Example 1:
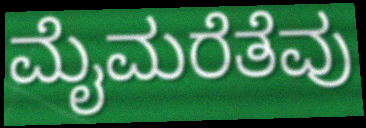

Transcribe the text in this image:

ಮೈಮರೆತೆವು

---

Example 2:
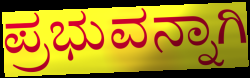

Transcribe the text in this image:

ಪ್ರಭುವನ್ನಾಗಿ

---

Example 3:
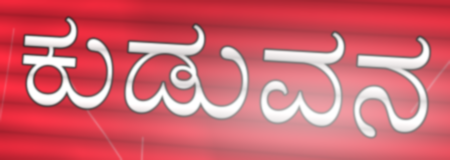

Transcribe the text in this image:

ಕುಡುವನ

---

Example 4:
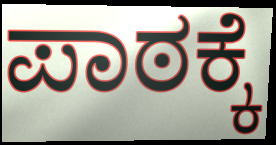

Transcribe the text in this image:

ಪಾಠಕ್ಕೆ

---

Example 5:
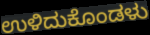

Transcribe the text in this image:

ಉಳಿದುಕೊಂಡಳು